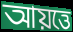
আয়ত্তে